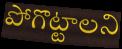
పోగొట్టాలని